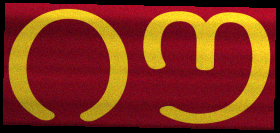
റൗ